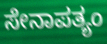
ಸೇನಾಪತ್ಯಂ